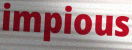
impious